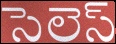
సెలెస్